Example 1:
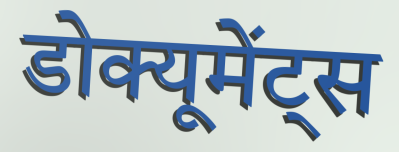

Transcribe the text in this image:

डोक्यूमेंट्स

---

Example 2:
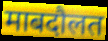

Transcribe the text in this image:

माबदौलत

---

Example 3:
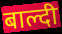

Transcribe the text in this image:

बाल्दी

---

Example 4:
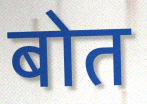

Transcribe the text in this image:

बोत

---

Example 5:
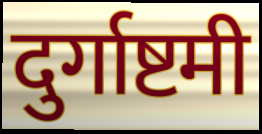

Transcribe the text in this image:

दुर्गाष्टमी